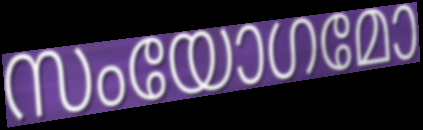
സംയോഗമോ